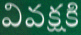
వివక్షకి